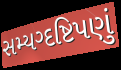
સમ્યગ્દષ્ટિપણું